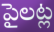
పైలట్ల